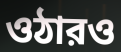
ওঠারও